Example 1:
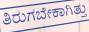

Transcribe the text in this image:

ತಿರುಗಬೇಕಾಗಿತ್ತು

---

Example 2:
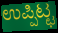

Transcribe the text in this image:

ಉಪ್ಪಿಟ್ಟ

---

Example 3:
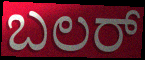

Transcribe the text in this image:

ಬಲರ್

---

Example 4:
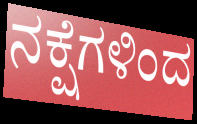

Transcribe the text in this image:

ನಕ್ಷೆಗಳಿಂದ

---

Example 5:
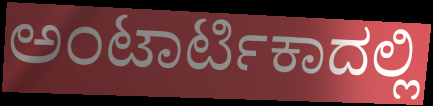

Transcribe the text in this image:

ಅಂಟಾರ್ಟಿಕಾದಲ್ಲಿ